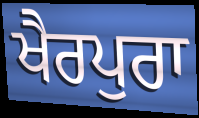
ਖੈਰਪੁਰਾ